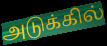
அடுக்கில்